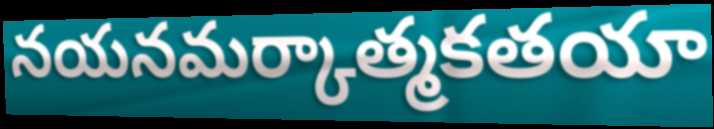
నయనమర్కాత్మకతయా